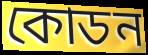
কোডন